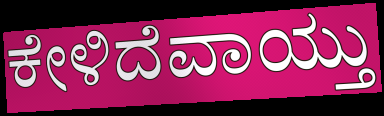
ಕೇಳಿದೆವಾಯ್ತು